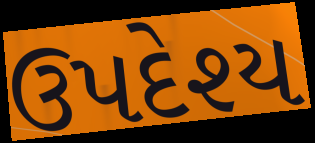
ઉપદેશ્ય